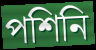
পশিনি